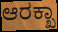
ಆರಕ್ಖಾ